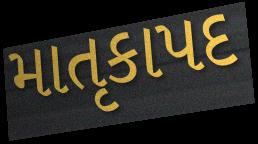
માતૃકાપદ